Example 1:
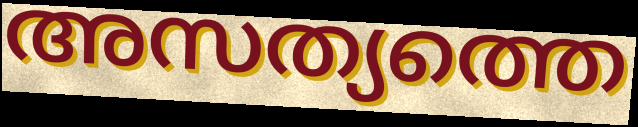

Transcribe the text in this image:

അസത്യത്തെ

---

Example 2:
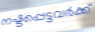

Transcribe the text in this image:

നഷ്ടപ്പെട്ടവർക്ക്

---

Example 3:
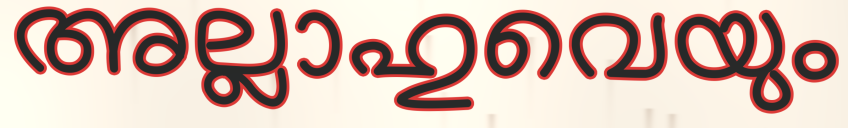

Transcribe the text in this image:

അല്ലാഹുവെയും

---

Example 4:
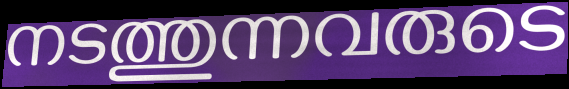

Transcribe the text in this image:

നടത്തുന്നവരുടെ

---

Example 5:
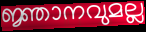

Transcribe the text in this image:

ജ്ഞാനവുമല്ല